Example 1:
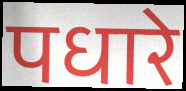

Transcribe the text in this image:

पधारे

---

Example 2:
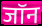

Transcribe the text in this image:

जॉन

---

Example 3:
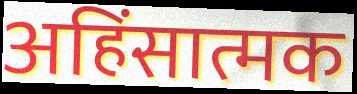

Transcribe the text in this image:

अहिंसात्मक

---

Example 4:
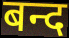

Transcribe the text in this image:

बन्द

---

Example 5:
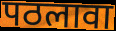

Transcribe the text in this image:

पठलावा